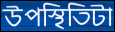
উপস্থিতিটা